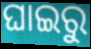
ଘାଇରୁ